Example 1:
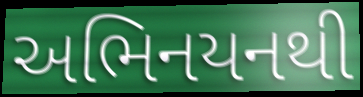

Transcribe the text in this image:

અભિનયનથી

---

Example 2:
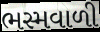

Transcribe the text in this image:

ભસ્મવાળી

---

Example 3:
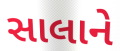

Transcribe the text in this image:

સાલાને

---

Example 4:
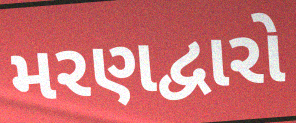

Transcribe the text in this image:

મરણદ્વારો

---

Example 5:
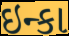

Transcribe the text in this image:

ઇન્કા